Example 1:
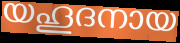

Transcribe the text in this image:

യഹൂദനായ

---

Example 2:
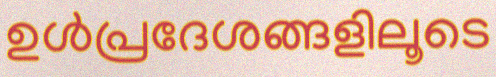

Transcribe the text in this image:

ഉൾപ്രദേശങ്ങളിലൂടെ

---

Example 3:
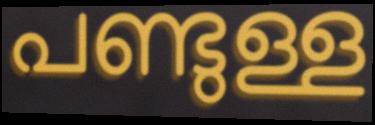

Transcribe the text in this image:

പണ്ടുള്ള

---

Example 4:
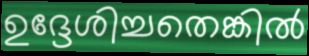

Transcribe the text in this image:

ഉദ്ദേശിച്ചതെങ്കിൽ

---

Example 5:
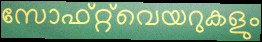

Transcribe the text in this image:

സോഫ്റ്റ്‌വെയറുകളും